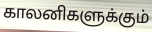
காலனிகளுக்கும்